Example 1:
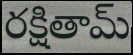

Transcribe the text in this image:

రక్షితామ్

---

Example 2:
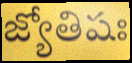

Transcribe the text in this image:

జ్యోతిషః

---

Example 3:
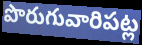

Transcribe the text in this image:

పొరుగువారిపట్ల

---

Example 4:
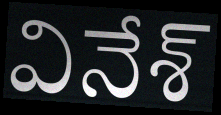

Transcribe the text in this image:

వినేశ్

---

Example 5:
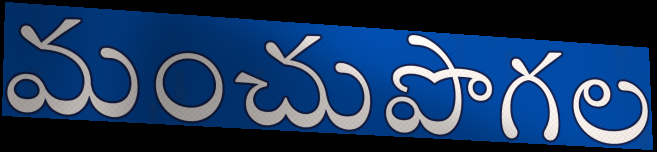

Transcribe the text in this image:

మంచుపొగల